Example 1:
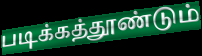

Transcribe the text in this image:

படிக்கத்தூண்டும்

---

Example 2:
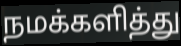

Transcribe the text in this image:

நமக்களித்து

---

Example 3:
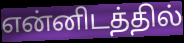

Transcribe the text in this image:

என்னிடத்தில்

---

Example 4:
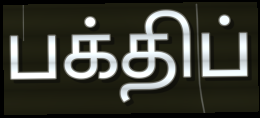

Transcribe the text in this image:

பக்திப்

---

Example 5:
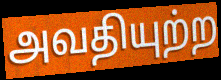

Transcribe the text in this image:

அவதியுற்ற